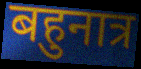
बहुनात्र